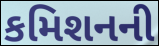
કમિશનની